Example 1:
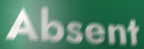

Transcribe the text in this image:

Absent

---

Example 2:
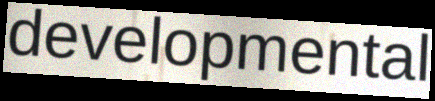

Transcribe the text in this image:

developmental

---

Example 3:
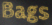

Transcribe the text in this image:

Bags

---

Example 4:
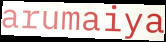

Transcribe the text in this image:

arumaiya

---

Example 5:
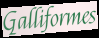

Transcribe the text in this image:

Galliformes